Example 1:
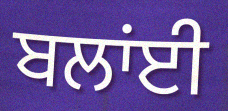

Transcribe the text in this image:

ਬਲਾਂਈ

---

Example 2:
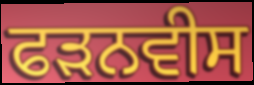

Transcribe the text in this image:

ਫੜਨਵੀਸ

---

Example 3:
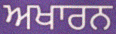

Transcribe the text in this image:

ਅਖਾਰਨ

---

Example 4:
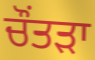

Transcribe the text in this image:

ਚੌਂਤੜਾ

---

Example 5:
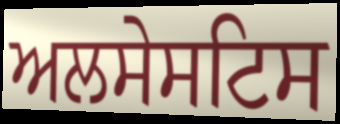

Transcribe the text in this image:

ਅਲਸੇਸਟਿਸ